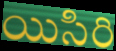
యిసిరి